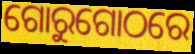
ଗୋରୁଗୋଠରେ